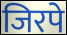
जिरपे